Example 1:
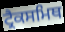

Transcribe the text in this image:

ਟ੍ਰੈਕਸਮਿਥ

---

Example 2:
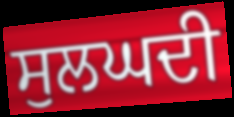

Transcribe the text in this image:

ਸੁਲਘਦੀ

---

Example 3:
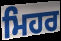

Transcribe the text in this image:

ਮਿਹਰ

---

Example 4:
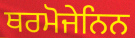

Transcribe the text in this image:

ਥਰਮੋਜੇਨਿਨ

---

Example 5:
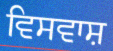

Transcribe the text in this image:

ਵਿਸਵਾਸ਼